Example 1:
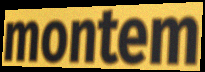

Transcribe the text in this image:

montem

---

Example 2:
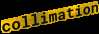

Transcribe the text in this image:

collimation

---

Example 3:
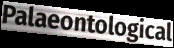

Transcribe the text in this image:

Palaeontological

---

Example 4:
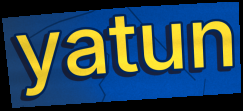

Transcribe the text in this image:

yatun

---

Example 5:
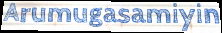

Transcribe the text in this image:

Arumugasamiyin